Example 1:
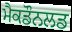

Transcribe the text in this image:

ਮੈਕਡੌਨਲਡ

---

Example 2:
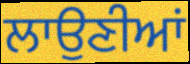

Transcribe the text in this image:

ਲਾਉਣੀਆਂ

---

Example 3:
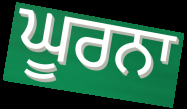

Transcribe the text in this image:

ਘੂਰਨਾ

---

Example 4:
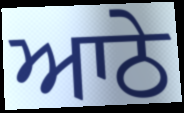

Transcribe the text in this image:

ਆਠੇ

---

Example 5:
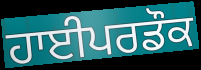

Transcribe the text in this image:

ਹਾਈਪਰਡੌਕ